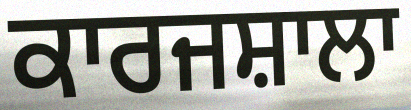
ਕਾਰਜਸ਼ਾਲਾ